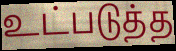
உட்படுத்த